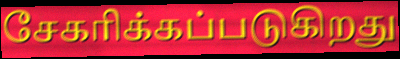
சேகரிக்கப்படுகிறது